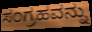
ಸಂಗ್ರಹವನ್ನು